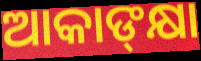
ଆକାଙ୍‍କ୍ଷା